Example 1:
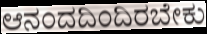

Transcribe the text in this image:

ಆನಂದದಿಂದಿರಬೇಕು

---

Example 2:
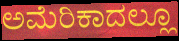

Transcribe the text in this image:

ಅಮೆರಿಕಾದಲ್ಲೂ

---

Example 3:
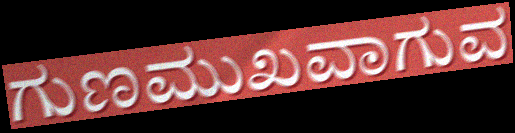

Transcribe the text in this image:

ಗುಣಮುಖವಾಗುವ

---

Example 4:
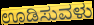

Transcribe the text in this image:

ಊಡಿಸುವಳು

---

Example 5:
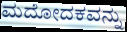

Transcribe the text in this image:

ಮದೋದಕವನ್ನು